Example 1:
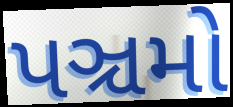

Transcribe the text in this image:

પઞ્ચમો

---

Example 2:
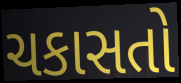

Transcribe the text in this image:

ચકાસતો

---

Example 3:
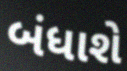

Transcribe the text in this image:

બંધાશે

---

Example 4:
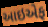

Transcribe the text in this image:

આઇએફ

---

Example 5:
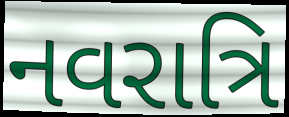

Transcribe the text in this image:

નવરાત્રિ